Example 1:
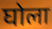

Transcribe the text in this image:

घोला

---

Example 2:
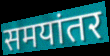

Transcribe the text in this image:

समयांतर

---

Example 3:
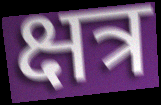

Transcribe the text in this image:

क्षत्र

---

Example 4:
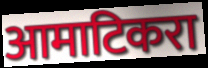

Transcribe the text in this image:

आमाटिकरा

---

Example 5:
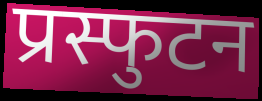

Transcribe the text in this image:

प्रस्फुटन